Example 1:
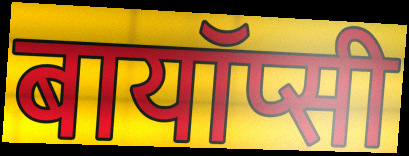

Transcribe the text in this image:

बायॉप्सी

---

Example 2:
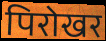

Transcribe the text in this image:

पिरोखर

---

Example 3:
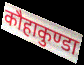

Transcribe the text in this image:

कौहाकुण्डा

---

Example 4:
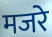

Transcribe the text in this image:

मजरे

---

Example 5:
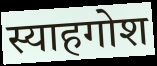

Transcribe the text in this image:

स्याहगोश